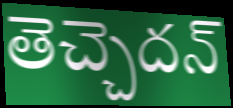
తెచ్చెదన్